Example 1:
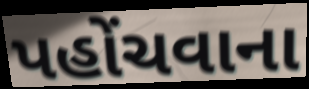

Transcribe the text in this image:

પહોંચવાના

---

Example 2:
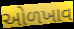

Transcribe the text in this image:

ઓળખાવ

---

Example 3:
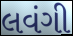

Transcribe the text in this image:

લવંગી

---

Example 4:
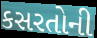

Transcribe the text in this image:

કસરતોની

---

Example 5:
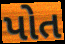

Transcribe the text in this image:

પોત